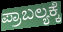
ಪ್ರಾಬಲ್ಯಕ್ಕೆ